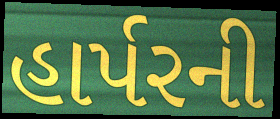
હાર્પરની